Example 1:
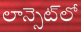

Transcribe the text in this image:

లాన్సెట్‌లో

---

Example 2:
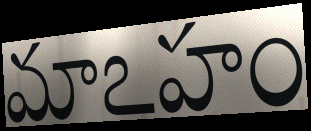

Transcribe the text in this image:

మాఽహం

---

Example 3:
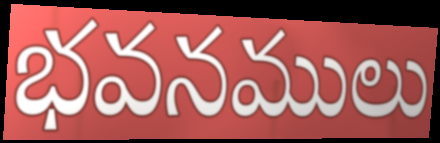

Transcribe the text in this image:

భవనములు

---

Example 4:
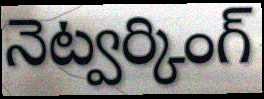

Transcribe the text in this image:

నెట్వర్కింగ్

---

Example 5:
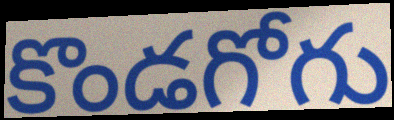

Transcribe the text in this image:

కొండగోగు